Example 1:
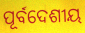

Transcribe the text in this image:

ପୂର୍ବଦେଶୀୟ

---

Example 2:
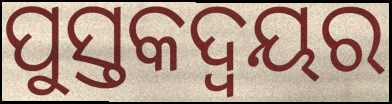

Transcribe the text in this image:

ପୁସ୍ତକଦ୍ୱୟର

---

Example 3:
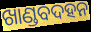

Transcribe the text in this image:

ଖାଣ୍ଡବଦହନ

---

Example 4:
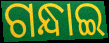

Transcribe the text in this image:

ଗନ୍ଧାଇ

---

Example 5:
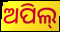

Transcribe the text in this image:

ଅପିଲ୍